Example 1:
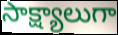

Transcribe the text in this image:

సాక్ష్యాలుగా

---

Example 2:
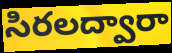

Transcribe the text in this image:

సిరలద్వారా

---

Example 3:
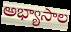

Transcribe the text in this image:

అభ్యాసాల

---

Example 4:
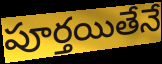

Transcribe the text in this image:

పూర్తయితేనే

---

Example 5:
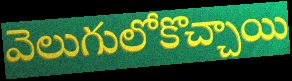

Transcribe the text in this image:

వెలుగులోకొచ్చాయి